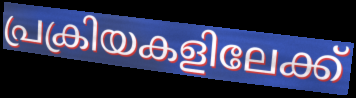
പ്രക്രിയകളിലേക്ക്